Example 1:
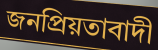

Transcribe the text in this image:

জনপ্ৰিয়তাবাদী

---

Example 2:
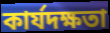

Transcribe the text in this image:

কাৰ্যদক্ষতা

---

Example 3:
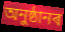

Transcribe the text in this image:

অনুষ্ঠানৰ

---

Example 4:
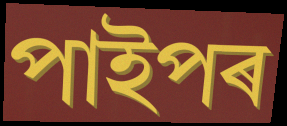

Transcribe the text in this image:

পাইপৰ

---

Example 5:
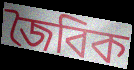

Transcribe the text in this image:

জৈবিক